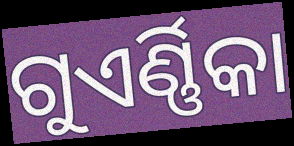
ଗୁଏର୍ଣ୍ଣିକା